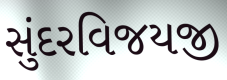
સુંદરવિજયજી